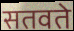
सतवते